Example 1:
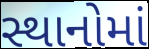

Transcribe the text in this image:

સ્થાનોમાં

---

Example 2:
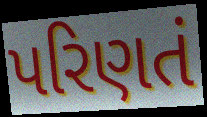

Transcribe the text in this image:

પરિણતં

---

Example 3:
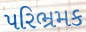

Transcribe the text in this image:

પરિભ્રમક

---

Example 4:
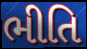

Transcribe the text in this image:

ભીતિ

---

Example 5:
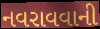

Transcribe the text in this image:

નવરાવવાની